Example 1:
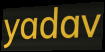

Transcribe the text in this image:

yadav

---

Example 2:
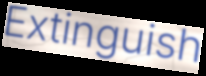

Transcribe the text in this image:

Extinguish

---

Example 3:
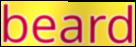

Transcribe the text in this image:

beard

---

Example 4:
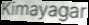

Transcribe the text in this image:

Kimayagar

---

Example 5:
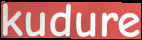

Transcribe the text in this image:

kudure